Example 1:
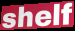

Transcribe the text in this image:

shelf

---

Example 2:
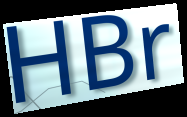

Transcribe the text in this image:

HBr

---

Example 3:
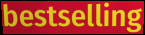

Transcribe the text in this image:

bestselling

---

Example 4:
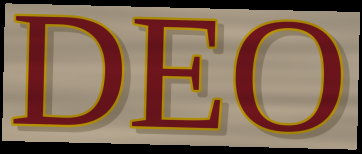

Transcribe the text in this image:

DEO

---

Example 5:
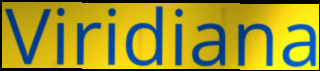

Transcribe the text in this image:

Viridiana